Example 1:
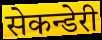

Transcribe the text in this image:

सेकन्डेरी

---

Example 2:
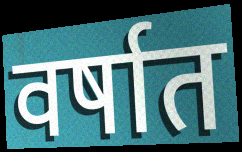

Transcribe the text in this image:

वर्षात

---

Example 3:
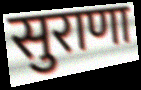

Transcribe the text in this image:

सुराणा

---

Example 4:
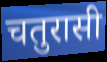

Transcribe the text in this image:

चतुरासी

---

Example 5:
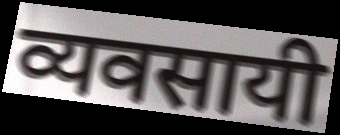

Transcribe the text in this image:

व्यवसायी